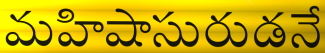
మహిషాసురుడనే